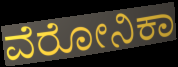
ವೆರೋನಿಕಾ